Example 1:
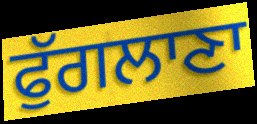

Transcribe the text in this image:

ਫੁੱਗਲਾਣਾ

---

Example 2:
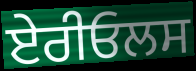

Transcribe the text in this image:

ਏਰੀਓਲਸ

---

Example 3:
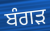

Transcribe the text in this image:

ਬੰਗੜ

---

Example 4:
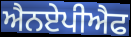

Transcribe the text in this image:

ਐਨਏਪੀਐਫ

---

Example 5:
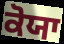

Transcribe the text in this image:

ਕੋਯਾ